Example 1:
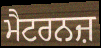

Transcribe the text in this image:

ਮੈਟਰਨਜ਼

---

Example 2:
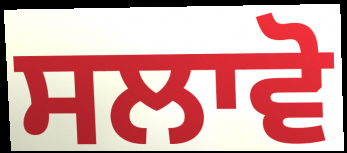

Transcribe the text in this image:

ਸਲਾਵੋ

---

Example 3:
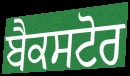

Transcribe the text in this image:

ਬੈਕਸਟੋਰ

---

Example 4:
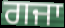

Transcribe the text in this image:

ਗਜਾ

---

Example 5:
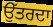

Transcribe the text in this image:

ਉੱਤਰਦਾ